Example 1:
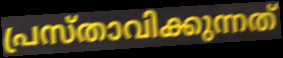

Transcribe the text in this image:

പ്രസ്താവിക്കുന്നത്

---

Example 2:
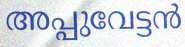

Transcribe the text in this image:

അപ്പുവേട്ടൻ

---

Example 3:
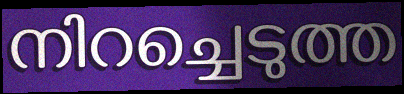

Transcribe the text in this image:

നിറച്ചെടുത്ത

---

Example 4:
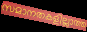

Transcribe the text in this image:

സമാനതകളില്ലാത്ത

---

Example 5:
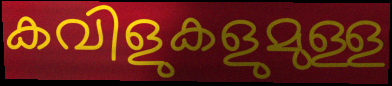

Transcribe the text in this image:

കവിളുകളുമുള്ള